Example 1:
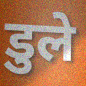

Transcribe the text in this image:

डुले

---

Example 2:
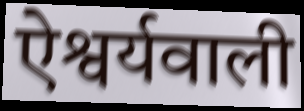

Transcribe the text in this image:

ऐश्वर्यवाली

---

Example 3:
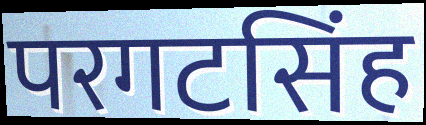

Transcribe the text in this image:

परगटसिंह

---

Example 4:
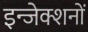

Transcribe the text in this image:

इन्जेक्शनों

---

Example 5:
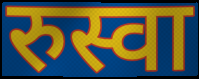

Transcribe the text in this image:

रुस्वा